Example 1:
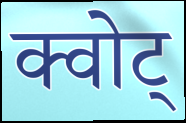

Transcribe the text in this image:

क्वोट्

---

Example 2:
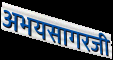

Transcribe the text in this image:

अभयसागरजी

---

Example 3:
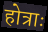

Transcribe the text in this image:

होत्राः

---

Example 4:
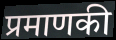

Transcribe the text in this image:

प्रमाणकी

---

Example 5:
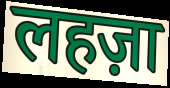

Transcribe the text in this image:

लहज़ा